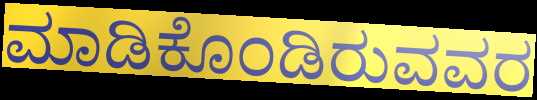
ಮಾಡಿಕೊಂಡಿರುವವರ